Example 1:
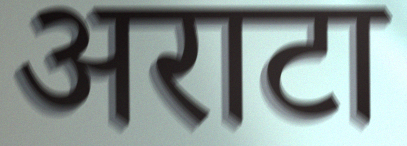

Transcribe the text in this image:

अराटा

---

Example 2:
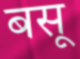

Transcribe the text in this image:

बसू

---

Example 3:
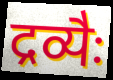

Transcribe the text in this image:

द्रव्यैः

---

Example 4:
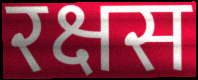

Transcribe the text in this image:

रक्षस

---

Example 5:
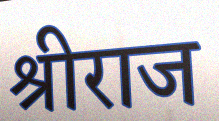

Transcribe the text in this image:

श्रीराज